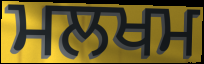
ਮਲਖਮ